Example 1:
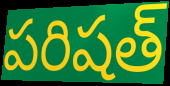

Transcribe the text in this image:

పరిషత్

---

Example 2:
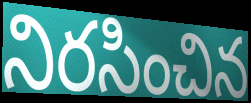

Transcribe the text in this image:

నిరసించిన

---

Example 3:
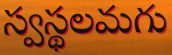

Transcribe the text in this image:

స్వస్థలమగు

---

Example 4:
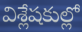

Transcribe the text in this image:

విశ్లేషకుల్లో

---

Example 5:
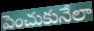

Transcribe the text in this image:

పెంచుకునేలా